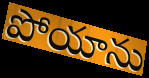
పోయాను